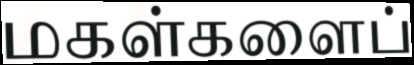
மகள்களைப்